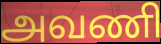
அவணி